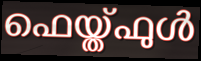
ഫെയ്ത്ഫുൾ